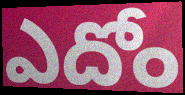
ఎదోం